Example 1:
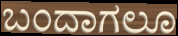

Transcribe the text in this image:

ಬಂದಾಗಲೂ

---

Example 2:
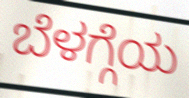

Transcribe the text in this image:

ಬೆಳಗ್ಗೆಯ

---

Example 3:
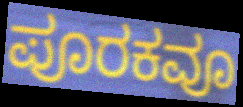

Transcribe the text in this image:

ಪೂರಕವೂ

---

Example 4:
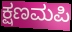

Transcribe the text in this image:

ಕ್ಷಣಮಪಿ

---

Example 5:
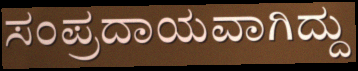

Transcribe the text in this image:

ಸಂಪ್ರದಾಯವಾಗಿದ್ದು